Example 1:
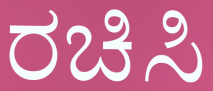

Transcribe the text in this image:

ರಚಿಸಿ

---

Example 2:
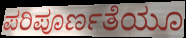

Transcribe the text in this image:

ಪರಿಪೂರ್ಣತೆಯೂ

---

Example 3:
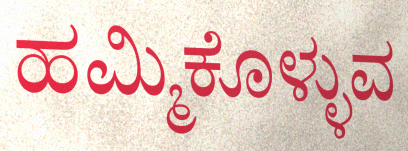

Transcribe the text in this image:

ಹಮ್ಮಿಕೊಳ್ಳುವ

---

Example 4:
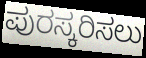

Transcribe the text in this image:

ಪುರಸ್ಕರಿಸಲು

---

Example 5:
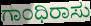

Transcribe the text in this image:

ಗಾಂಧಿರಾಸು